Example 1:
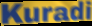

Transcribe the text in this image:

Kuradi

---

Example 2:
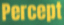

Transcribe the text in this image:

Percept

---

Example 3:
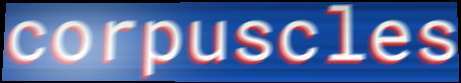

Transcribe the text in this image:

corpuscles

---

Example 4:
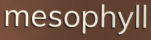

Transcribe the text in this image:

mesophyll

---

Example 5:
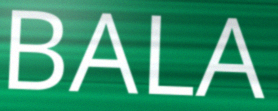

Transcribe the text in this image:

BALA